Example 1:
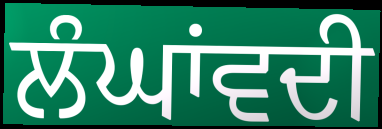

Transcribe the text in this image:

ਲੰਘਾਂਵਦੀ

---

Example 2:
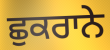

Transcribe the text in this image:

ਛੁਕਰਾਨੇ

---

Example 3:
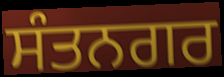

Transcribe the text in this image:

ਸੰਤਨਗਰ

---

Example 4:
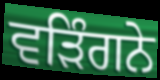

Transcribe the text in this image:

ਵੜਿੰਗਨੇ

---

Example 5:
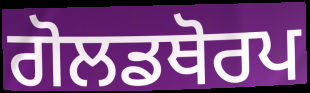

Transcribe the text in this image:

ਗੋਲਡਥੋਰਪ